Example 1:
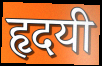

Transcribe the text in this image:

हृदयी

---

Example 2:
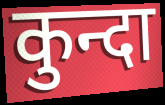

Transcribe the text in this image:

कुन्दा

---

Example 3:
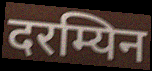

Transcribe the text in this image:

दरम्यिन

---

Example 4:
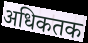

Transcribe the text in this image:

अधिकतक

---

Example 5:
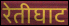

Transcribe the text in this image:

रेतीघाट